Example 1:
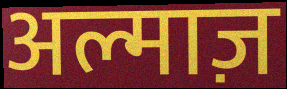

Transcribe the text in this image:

अल्माज़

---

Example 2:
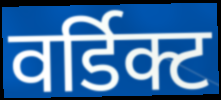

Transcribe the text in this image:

वर्डिक्ट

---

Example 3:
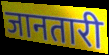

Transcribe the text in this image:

जानतारी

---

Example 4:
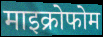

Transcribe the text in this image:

माइक्रोफोम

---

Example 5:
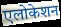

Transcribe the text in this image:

एलोकेशन